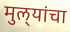
मुल्यांचा